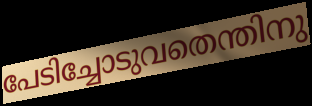
പേടിച്ചോടുവതെന്തിനു